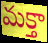
మక్తా